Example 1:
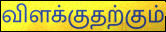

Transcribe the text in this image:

விளக்குதற்கும்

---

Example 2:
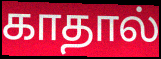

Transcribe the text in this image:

காதால்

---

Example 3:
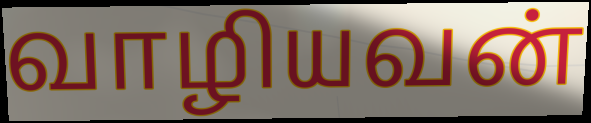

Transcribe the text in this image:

வாழியவன்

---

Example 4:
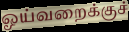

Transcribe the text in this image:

ஓய்வறைக்குச்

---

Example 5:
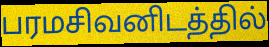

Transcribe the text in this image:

பரமசிவனிடத்தில்